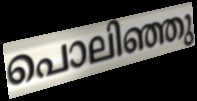
പൊലിഞ്ഞു